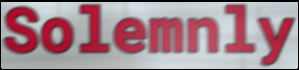
Solemnly